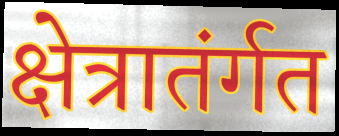
क्षेत्रातंर्गत